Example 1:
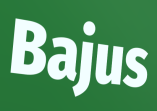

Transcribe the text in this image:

Bajus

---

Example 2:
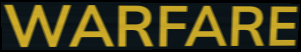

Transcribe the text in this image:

WARFARE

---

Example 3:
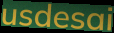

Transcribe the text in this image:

usdesai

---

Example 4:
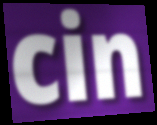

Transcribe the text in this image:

cin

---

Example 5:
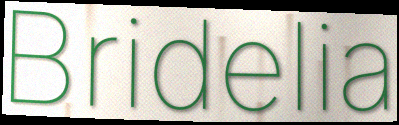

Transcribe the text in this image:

Bridelia